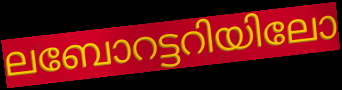
ലബോറട്ടറിയിലോ